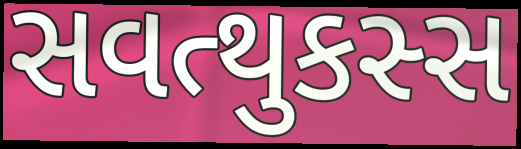
સવત્થુકસ્સ